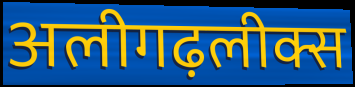
अलीगढ़लीक्स